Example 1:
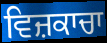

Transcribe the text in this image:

ਵਿਜ਼ਕਾਚਾ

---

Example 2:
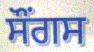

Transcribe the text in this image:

ਸੌਂਗਸ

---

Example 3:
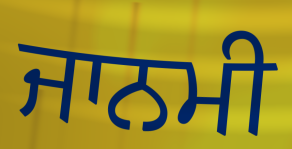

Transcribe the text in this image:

ਜਾਨਮੀ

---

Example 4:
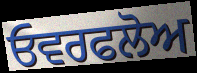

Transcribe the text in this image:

ਓਵਰਫਲੋਅ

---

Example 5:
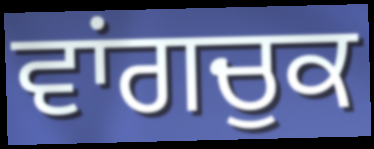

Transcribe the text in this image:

ਵਾਂਗਚੁਕ